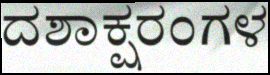
ದಶಾಕ್ಷರಂಗಳ